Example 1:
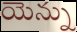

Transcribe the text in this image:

యెన్ను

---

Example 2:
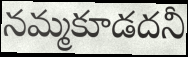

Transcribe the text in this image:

నమ్మకూడదనీ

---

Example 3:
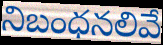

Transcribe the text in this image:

నిబంధనలివే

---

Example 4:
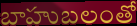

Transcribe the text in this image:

బాహుబలంతో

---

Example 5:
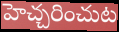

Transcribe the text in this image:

హెచ్చరించుట